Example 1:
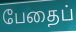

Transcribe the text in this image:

பேதைப்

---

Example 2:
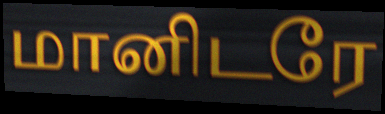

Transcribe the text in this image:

மானிடரே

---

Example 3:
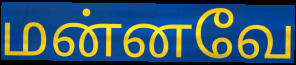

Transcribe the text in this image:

மன்னவே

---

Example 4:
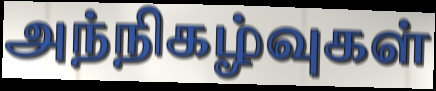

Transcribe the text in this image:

அந்நிகழ்வுகள்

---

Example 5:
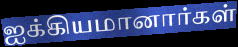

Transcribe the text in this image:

ஐக்கியமானார்கள்